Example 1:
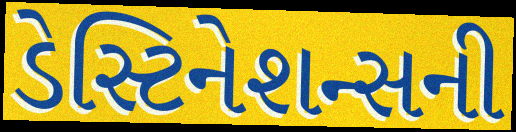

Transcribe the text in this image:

ડેસ્ટિનેશન્સની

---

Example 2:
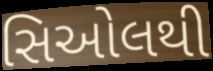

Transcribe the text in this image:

સિઓલથી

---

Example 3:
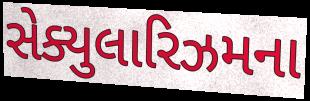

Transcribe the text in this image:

સેક્યુલારિઝમના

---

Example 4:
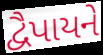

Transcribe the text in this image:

દ્વૈપાયને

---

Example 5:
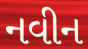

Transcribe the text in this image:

નવીન